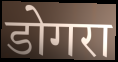
डोगरा